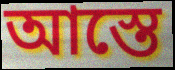
আস্তে